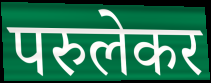
परुलेकर